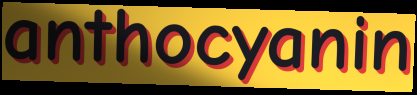
anthocyanin